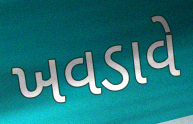
ખવડાવે